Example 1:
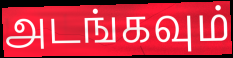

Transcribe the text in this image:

அடங்கவும்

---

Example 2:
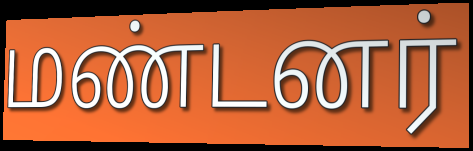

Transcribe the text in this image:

மண்டனர்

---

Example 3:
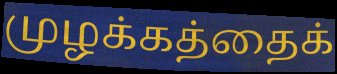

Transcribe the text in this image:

முழக்கத்தைக்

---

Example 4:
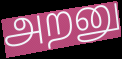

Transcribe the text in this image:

அறனு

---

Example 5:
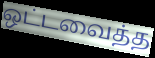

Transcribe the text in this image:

ஒட்டவைத்த